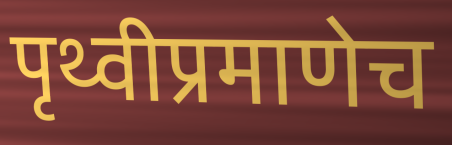
पृथ्वीप्रमाणेच